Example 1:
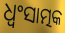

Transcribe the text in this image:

ଧ୍ଵଂସାତ୍ମକ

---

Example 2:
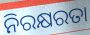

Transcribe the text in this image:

ନିରକ୍ଷରତା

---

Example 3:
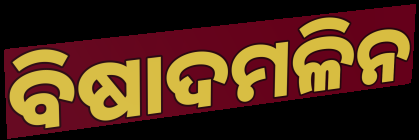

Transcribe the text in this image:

ବିଷାଦମଳିନ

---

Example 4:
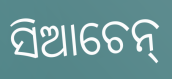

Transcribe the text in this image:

ସିଆଚେନ୍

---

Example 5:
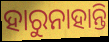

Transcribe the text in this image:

ହାରୁନାହାନ୍ତି